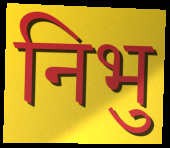
निभु